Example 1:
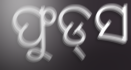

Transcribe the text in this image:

ଫୁଡ୍‌ସ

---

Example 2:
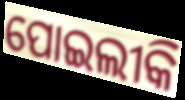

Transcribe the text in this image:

ପୋଇଲୀକି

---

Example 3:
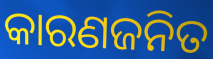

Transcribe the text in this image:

କାରଣଜନିତ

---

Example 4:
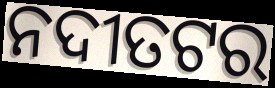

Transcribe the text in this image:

ନଦୀତଟର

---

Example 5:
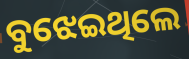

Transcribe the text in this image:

ବୁଝେଇଥିଲେ